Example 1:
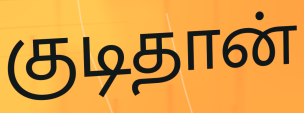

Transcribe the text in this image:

குடிதான்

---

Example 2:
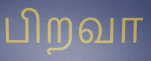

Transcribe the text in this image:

பிறவா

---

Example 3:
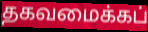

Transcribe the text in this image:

தகவமைக்கப்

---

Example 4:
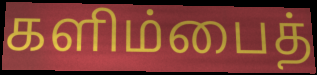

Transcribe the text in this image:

களிம்பைத்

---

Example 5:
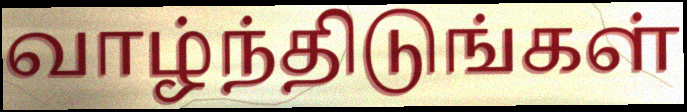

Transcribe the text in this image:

வாழ்ந்திடுங்கள்